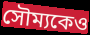
সৌম্যকেও